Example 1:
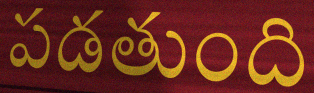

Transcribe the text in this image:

పడతుంది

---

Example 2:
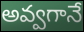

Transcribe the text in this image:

అవ్వగానే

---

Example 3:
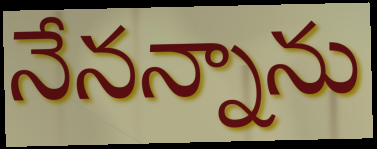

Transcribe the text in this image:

నేనన్నాను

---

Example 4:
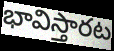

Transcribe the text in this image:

భావిస్తారట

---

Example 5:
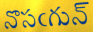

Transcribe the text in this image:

నొసఁగున్